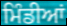
ਮਿੰਡੀਆਂ